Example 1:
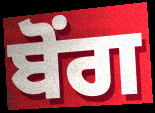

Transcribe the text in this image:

ਬੋਂਗ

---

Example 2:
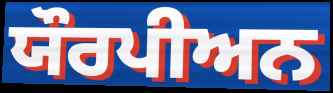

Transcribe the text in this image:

ਯੌਰਪੀਅਨ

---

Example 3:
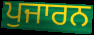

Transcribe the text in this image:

ਪੁਜਾਰਨ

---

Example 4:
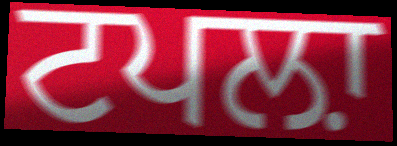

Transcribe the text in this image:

ਟਪਲ਼ਾ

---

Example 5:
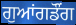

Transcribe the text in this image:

ਗੁਆਂਗਡੌਂਗ